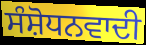
ਸੰਸ਼ੋਧਨਵਾਦੀ